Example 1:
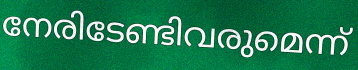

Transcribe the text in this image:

നേരിടേണ്ടിവരുമെന്ന്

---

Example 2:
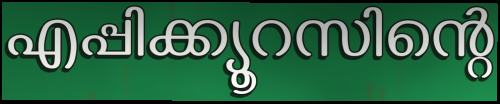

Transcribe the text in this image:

എപ്പിക്ക്യൂറസിന്റെ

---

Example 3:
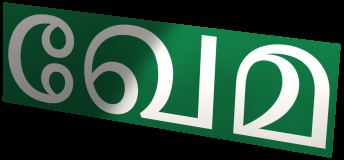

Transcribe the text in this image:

ഖേമ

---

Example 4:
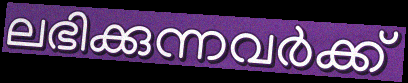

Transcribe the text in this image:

ലഭിക്കുന്നവർക്ക്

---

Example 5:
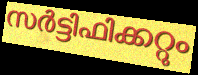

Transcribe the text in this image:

സർട്ടിഫിക്കറ്റും